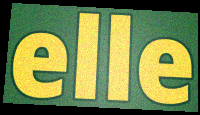
elle